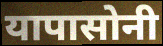
यापासोनी